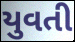
યુવતી